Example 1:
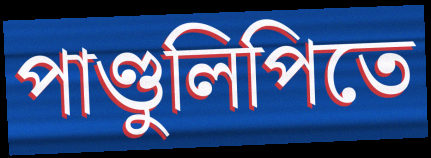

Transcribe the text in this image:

পাণ্ডুলিপিতে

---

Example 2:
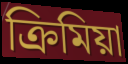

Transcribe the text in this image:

ক্রিমিয়া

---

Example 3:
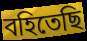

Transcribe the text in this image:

বহিতেছি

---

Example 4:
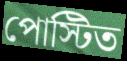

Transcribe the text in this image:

পোস্টিত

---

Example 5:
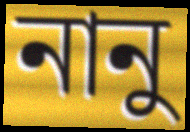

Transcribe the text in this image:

নানু